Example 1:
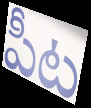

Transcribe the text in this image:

పీట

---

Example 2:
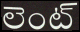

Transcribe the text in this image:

లెంట్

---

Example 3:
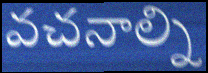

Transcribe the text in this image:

వచనాల్ని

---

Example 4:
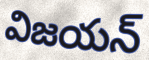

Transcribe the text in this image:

విజయన్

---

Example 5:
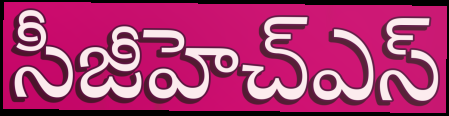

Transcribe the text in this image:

సీజీహెచ్ఎస్